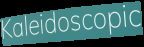
Kaleidoscopic